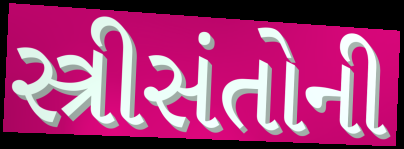
સ્ત્રીસંતોની